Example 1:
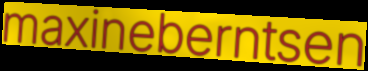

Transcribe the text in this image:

maxineberntsen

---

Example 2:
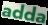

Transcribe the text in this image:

adda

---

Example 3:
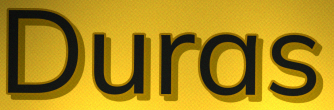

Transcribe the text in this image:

Duras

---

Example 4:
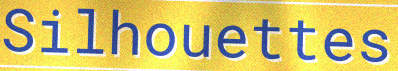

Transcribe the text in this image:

Silhouettes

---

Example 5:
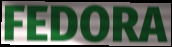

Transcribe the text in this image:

FEDORA